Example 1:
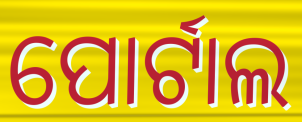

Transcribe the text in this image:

ପୋର୍ଟାଲ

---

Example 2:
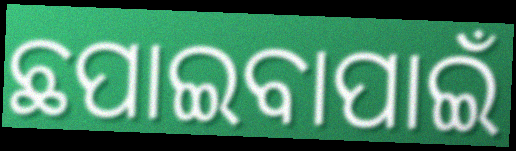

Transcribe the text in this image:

ଛପାଇବାପାଇଁ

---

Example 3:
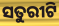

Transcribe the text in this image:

ସତୁରୀଟି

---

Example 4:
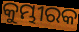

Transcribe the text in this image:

କୁମ୍ଭୀରକ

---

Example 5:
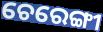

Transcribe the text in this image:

ଚେରେଙ୍ଗୀ